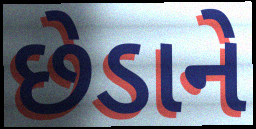
છેડાને